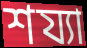
শয্যা